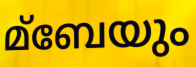
മ്ബേയും